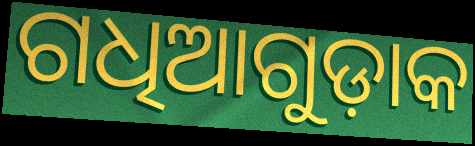
ଗଧିଆଗୁଡ଼ାକ